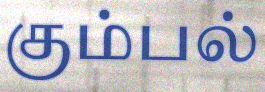
கும்பல்